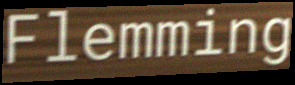
Flemming